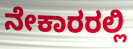
ನೇಕಾರರಲ್ಲಿ